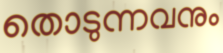
തൊടുന്നവനും